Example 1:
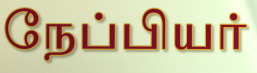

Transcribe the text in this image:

நேப்பியர்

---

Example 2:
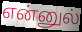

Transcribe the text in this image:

என்னுல்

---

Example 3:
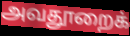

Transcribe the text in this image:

அவதூறைக்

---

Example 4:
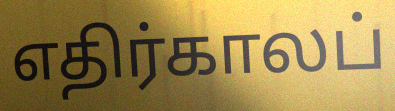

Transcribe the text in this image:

எதிர்காலப்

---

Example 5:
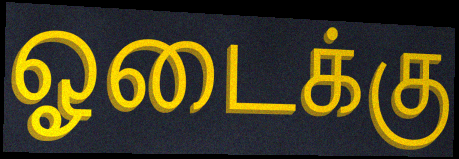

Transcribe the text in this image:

ஓடைக்கு